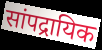
सांपद्रायिक